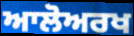
ਆਲੋਅਰਖ